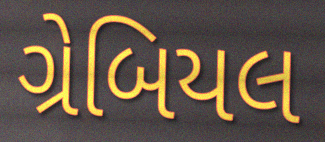
ગ્રેબિયલ